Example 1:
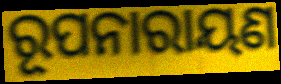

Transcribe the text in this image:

ରୂପନାରାୟଣ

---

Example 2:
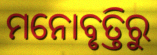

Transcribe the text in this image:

ମନୋବୃତ୍ତିରୁ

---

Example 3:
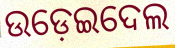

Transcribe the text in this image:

ଉଡ଼େଇଦେଲ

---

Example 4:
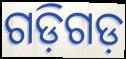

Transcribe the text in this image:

ଗଡ଼ିଗଡ଼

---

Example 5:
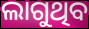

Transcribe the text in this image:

ଲାଗୁଥିବ